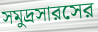
সমুদ্রসারসের